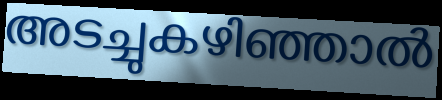
അടച്ചുകഴിഞ്ഞാൽ